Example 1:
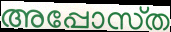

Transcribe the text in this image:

അപ്പോസ്‌ത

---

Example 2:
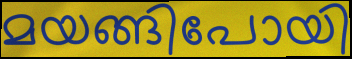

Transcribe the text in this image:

മയങ്ങിപോയി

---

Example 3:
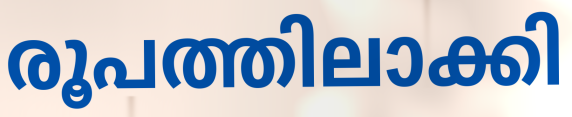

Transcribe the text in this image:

രൂപത്തിലാക്കി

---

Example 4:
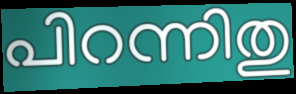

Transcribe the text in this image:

പിറന്നിതു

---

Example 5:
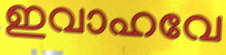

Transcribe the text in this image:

ഇവാഹവേ